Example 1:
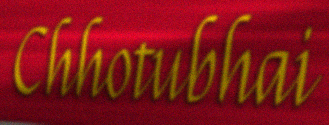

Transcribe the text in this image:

Chhotubhai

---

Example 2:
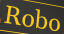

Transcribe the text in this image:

Robo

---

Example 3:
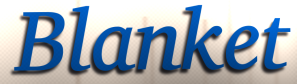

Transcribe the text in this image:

Blanket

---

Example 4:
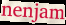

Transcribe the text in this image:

nenjam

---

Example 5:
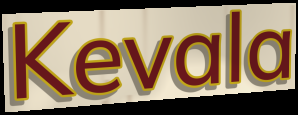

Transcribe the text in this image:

Kevala